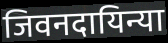
जिवनदायिन्या